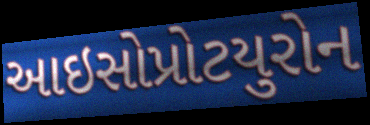
આઇસોપ્રોટયુરોન